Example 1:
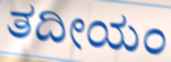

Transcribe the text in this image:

ತದೀಯಂ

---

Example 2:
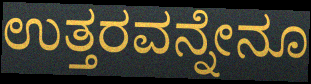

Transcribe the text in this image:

ಉತ್ತರವನ್ನೇನೂ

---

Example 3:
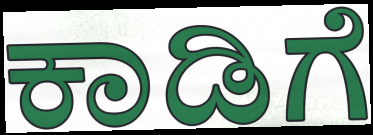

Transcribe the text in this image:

ಕಾಡಿಗೆ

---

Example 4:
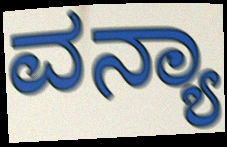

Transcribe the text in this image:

ವನ್ಯಾ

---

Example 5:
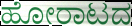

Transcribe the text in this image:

ಹೋರಾಟದ